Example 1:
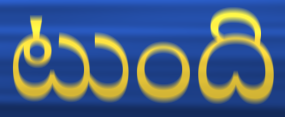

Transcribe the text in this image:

టుంది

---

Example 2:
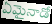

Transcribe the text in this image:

ఏమైనాడో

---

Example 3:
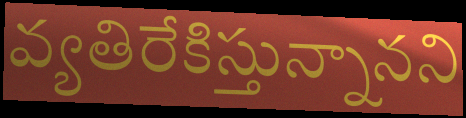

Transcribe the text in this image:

వ్యతిరేకిస్తున్నానని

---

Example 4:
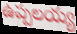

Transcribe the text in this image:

ఉప్పలయ్య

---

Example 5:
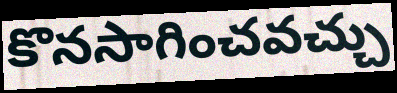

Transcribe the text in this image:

కొనసాగించవచ్చు